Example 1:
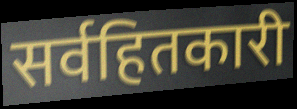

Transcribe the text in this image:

सर्वहितकारी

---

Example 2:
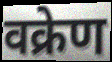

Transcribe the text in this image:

वक्रेण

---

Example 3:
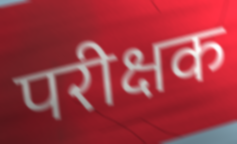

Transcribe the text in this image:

परीक्षक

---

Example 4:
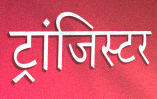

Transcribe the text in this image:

ट्रांजिस्टर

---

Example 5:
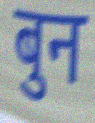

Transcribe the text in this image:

बुन